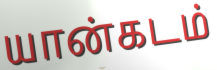
யான்கடம்